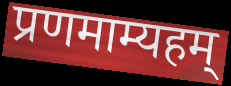
प्रणमाम्यहम्